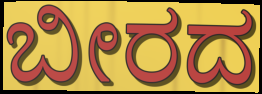
ಬೀರದ